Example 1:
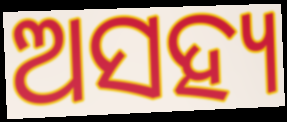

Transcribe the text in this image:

ଅସହ୍ୟ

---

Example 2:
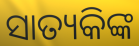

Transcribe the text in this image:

ସାତ୍ୟକିଙ୍କ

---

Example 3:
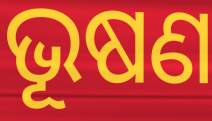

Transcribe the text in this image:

ଭୂଷଣ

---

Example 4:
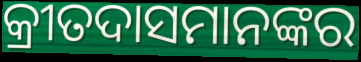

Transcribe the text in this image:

କ୍ରୀତଦାସମାନଙ୍କର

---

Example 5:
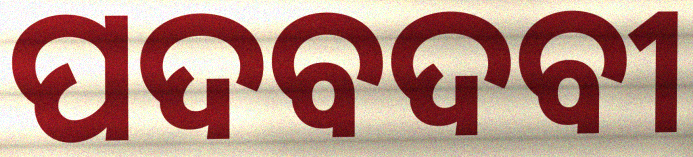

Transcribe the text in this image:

ପଦବଦବୀ